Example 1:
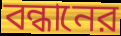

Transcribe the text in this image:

বন্ধানের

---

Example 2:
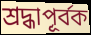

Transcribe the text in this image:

শ্রদ্ধাপূর্বক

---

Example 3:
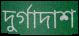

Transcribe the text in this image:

দুর্গাদাশ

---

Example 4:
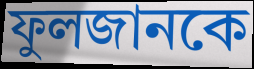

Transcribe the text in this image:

ফুলজানকে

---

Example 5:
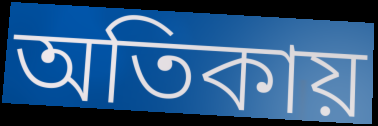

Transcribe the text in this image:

অতিকায়